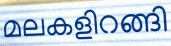
മലകളിറങ്ങി